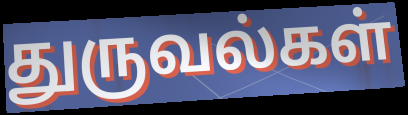
துருவல்கள்